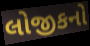
લોજીકનો